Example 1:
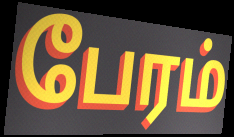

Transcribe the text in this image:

பேரம்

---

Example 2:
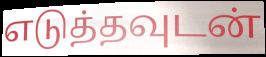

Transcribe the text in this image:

எடுத்தவுடன்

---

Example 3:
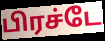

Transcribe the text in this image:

பிரச்டே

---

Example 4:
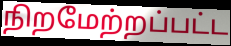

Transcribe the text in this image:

நிறமேற்றப்பட்ட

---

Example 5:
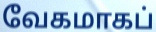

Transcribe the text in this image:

வேகமாகப்